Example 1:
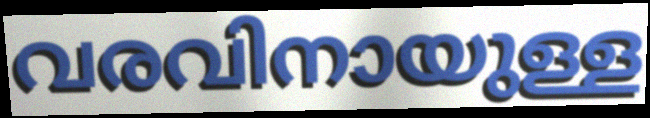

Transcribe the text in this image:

വരവിനായുള്ള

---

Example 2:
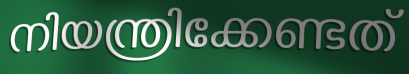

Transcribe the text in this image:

നിയന്ത്രിക്കേണ്ടത്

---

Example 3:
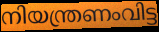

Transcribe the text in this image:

നിയന്ത്രണംവിട്ട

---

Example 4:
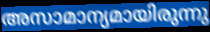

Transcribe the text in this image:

അസാമാന്യമായിരുന്നു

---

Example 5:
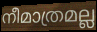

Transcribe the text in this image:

നീമാത്രമല്ല